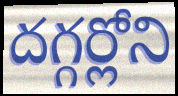
దగ్గర్లోని